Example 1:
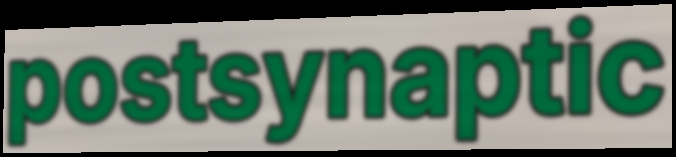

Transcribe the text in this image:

postsynaptic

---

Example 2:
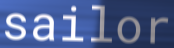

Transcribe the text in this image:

sailor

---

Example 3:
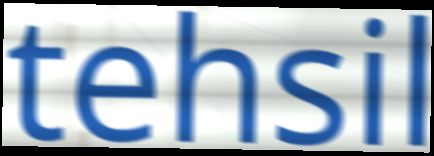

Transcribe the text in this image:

tehsil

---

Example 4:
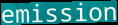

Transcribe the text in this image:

emission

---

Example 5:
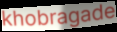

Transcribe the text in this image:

khobragade